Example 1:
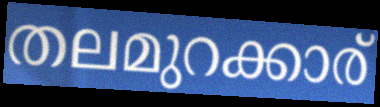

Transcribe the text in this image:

തലമുറക്കാര്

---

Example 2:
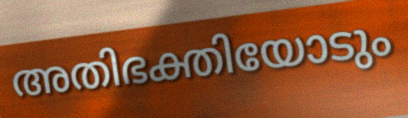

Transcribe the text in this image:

അതിഭക്തിയോടും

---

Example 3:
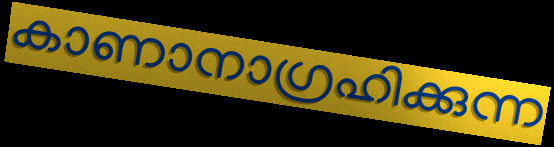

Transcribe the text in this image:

കാണാനാഗ്രഹിക്കുന്ന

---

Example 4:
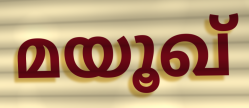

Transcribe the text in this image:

മയൂഖ്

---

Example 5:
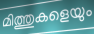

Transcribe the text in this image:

മിത്തുകളെയും